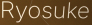
Ryosuke